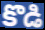
కొడి